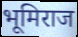
भूमिराज